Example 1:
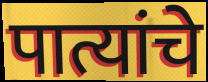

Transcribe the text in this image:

पात्यांचे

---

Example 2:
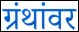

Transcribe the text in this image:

ग्रंथांवर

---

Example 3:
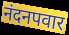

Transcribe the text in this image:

नंदनपवार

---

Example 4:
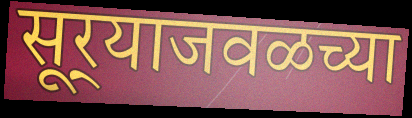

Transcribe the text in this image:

सूर्याजवळच्या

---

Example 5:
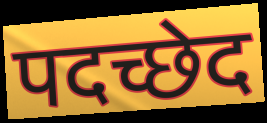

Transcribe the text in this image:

पदच्छेद